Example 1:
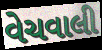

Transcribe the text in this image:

વેચવાલી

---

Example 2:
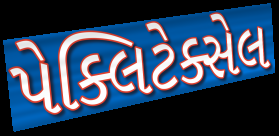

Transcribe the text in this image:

પેક્લિટેક્સેલ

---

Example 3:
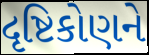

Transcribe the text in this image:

દૃષ્ટિકોણને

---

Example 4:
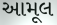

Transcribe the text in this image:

આમૂલ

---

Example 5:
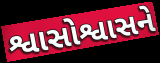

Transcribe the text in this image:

શ્વાસોશ્વાસને